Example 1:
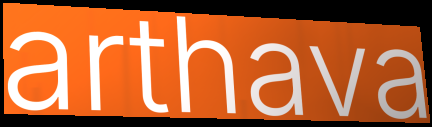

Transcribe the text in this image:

arthava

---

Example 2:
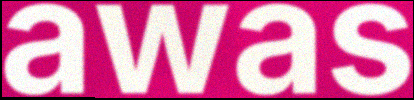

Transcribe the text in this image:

awas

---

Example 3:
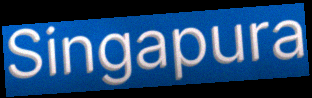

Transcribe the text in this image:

Singapura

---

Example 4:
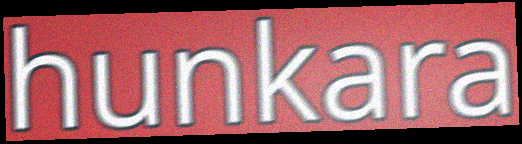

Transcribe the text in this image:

hunkara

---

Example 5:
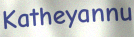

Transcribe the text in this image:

Katheyannu